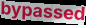
bypassed